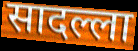
सादल्ला